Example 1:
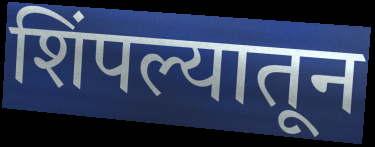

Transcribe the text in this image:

शिंपल्यातून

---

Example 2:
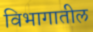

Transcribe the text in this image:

विभागातील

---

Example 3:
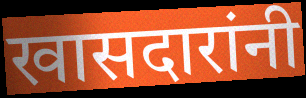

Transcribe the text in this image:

खासदारांनी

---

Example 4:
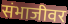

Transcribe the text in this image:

संभाजीवर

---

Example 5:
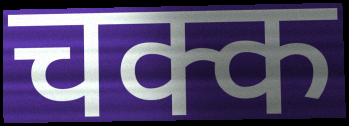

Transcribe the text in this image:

चक्क